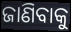
ଜାଣିବାକୁ